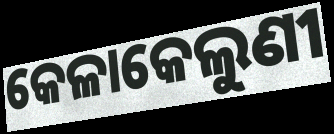
କେଳାକେଲୁଣୀ